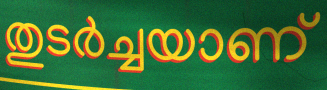
തുടർച്ചയാണ്